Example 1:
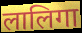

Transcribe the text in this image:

लालिगा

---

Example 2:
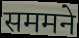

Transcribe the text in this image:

सममने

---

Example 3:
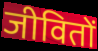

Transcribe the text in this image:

जीवितों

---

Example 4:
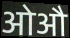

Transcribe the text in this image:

ओऔ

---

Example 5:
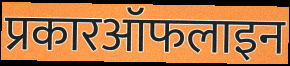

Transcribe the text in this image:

प्रकारऑफलाइन